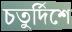
চতুৰ্দিশে